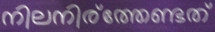
നിലനിര്ത്തേണ്ടത്